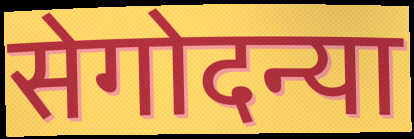
सेगोदन्या